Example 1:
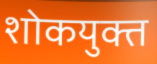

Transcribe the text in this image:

शोकयुक्त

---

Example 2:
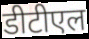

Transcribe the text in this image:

डीटीएल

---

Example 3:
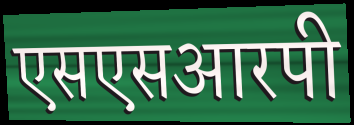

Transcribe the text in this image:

एसएसआरपी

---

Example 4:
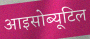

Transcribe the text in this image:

आइसोब्यूटिल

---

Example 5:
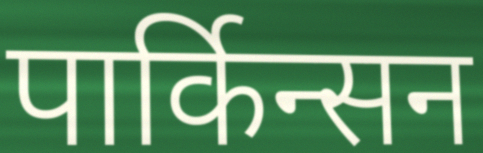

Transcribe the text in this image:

पार्किन्सन